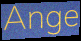
Ange